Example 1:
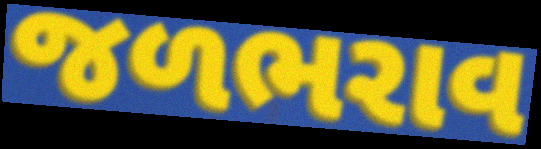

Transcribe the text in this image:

જળભરાવ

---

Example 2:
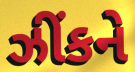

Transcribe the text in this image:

ઝીંકને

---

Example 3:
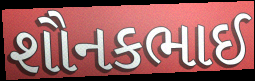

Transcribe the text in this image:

શૌનકભાઈ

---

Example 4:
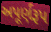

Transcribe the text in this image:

અપૂર્ણરૂપ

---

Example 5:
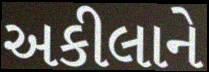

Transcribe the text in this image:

અકીલાને